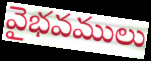
వైభవములు